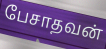
பேசாதவன்